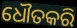
ଧୌତକରି